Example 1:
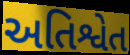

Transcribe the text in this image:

અતિશ્વેત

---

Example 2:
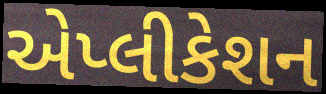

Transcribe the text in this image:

એપ્લીકેશન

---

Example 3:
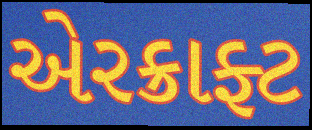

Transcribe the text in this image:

એરક્રાફ્ટ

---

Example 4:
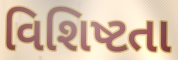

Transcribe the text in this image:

વિશિષ્ટતા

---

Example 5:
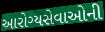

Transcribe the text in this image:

આરોગ્યસેવાઓની